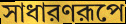
সাধারণরূপে